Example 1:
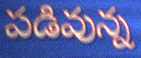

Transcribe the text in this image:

పడివున్న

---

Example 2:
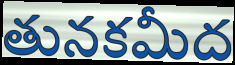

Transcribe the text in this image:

తునకమీద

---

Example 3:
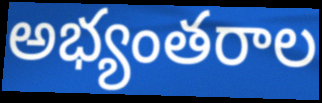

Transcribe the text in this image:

అభ్యంతరాల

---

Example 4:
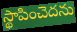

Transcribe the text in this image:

స్థాపించెదను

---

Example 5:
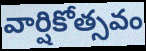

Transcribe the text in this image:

వార్షికోత్సవం